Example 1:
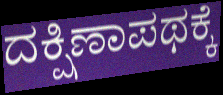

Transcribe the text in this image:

ದಕ್ಷಿಣಾಪಥಕ್ಕೆ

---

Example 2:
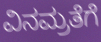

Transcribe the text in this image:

ವಿನಮ್ರತೆಗೆ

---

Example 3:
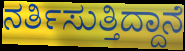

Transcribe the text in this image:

ನರ್ತಿಸುತ್ತಿದ್ದಾನೆ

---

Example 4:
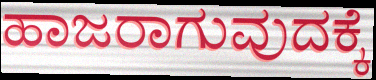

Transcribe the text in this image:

ಹಾಜರಾಗುವುದಕ್ಕೆ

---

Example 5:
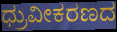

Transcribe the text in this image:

ಧ್ರುವೀಕರಣದ